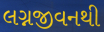
લગ્નજીવનથી